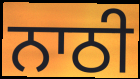
ਨਾਠੀ